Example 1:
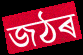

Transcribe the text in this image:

জঠৰ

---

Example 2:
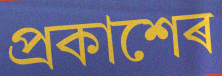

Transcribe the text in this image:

প্ৰকাশেৰ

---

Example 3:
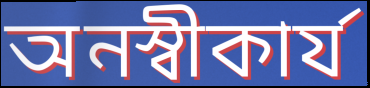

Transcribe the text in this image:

অনস্বীকাৰ্য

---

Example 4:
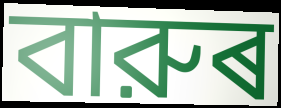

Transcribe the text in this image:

বাৰুৰ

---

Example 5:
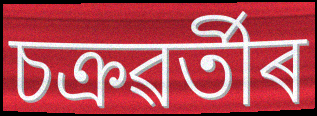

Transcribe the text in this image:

চক্ৰৱৰ্তীৰ